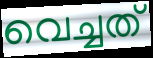
വെച്ചത്